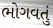
ભોગવતું